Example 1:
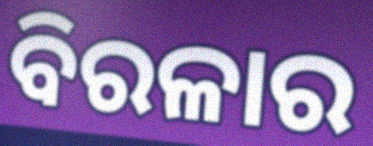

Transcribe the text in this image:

ବିରଳାର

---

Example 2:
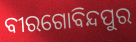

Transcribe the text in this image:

ବୀରଗୋବିନ୍ଦପୁର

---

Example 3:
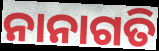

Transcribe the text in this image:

ନାନାଗତି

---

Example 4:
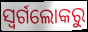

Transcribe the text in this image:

ସ୍ଵର୍ଗଲୋକରୁ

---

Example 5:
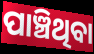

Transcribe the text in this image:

ପାଞ୍ଚିଥିବା